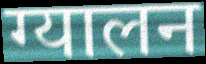
ग्यालन